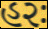
હરઃ